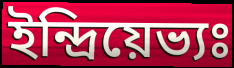
ইন্দ্রিয়েভ্যঃ